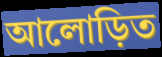
আলোড়িত